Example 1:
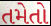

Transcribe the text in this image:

તમેતો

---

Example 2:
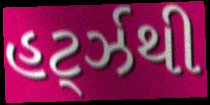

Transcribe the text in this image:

હર્ટ્ઝથી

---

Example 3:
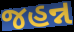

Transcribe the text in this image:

જહન્ન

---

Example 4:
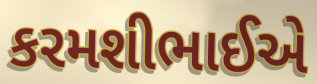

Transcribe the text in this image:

કરમશીભાઈએ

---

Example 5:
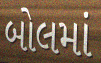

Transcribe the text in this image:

બોલમાં